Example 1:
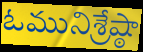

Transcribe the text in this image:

ఓమునిశ్రేష్ఠా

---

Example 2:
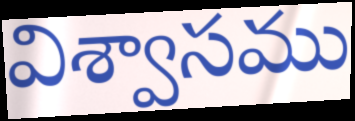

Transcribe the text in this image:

విశ్వాసము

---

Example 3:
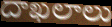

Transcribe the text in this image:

దాఖలాలు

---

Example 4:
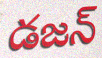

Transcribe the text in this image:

డజన్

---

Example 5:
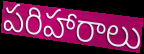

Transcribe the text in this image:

పరిహారాలు